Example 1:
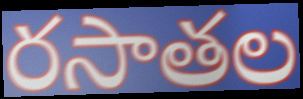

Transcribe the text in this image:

రసాతల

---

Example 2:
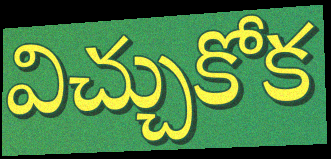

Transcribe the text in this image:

విచ్చుకోక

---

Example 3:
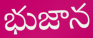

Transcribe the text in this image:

భుజాన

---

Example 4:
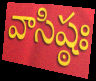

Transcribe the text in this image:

వాసిష్ఠః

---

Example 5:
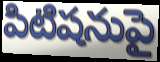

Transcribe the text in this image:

పిటిషనుపై